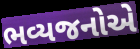
ભવ્યજનોએ